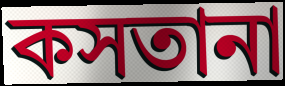
কসতানা